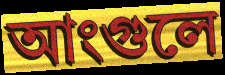
আংগুলে